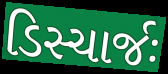
ડિસ્ચાર્જઃ